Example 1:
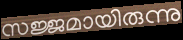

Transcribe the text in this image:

സജ്ജമായിരുന്നു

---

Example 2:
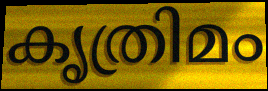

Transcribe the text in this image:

കൃത്രിമം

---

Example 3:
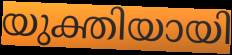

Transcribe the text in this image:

യുക്തിയായി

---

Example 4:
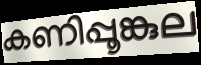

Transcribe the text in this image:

കണിപ്പൂങ്കുല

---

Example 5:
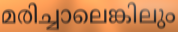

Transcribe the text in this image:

മരിച്ചാലെങ്കിലും